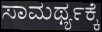
ಸಾಮರ್ಥ್ಯಕ್ಕೆ